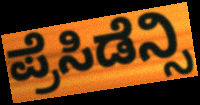
ಪ್ರೆಸಿಡೆನ್ಸಿ